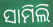
ସାମିଲି